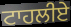
ਟਾਹਲੀਏ